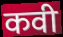
कवी